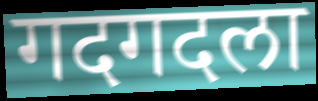
गदगदला